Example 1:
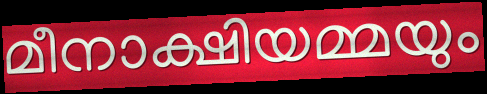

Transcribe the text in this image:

മീനാക്ഷിയമ്മയും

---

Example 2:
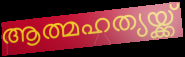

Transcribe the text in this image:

ആത്മഹത്യയ്ക്ക്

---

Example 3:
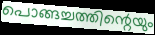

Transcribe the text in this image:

പൊങ്ങച്ചത്തിന്റെയും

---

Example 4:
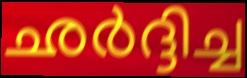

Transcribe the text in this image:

ഛർദ്ദിച്ച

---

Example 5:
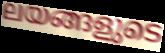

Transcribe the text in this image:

ലയങ്ങളുടെ